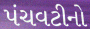
પંચવટીનો